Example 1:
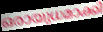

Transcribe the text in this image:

ഒരായുധമാക്കി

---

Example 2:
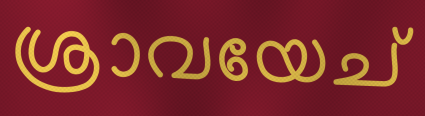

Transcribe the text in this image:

ശ്രാവയേച്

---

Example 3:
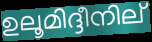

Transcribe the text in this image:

ഉലൂമിദ്ദീനില്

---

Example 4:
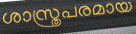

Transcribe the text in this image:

ശാസ്ത്രപരമായ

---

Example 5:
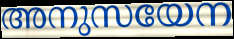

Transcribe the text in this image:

അനുസയേന